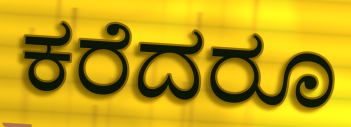
ಕರೆದರೂ